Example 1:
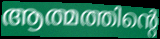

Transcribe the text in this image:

ആത്മത്തിന്റെ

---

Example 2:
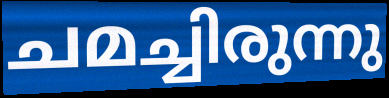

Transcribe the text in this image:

ചമച്ചിരുന്നു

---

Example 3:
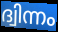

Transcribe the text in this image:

ദ്വിന്നം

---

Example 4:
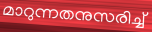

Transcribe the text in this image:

മാറുന്നതനുസരിച്ച്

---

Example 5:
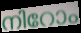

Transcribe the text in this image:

നിറോം